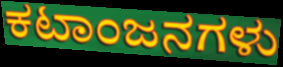
ಕಟಾಂಜನಗಳು